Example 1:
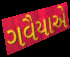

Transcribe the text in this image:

ગવૈયાએ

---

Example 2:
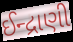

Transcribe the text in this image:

ઈન્દ્રાણી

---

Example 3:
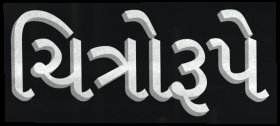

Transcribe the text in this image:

ચિત્રોરૂપે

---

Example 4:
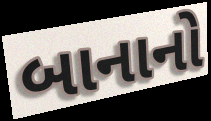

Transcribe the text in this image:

બાનાનો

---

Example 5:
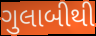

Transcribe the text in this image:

ગુલાબીથી